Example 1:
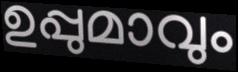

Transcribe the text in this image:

ഉപ്പുമാവും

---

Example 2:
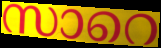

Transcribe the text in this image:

സാറെ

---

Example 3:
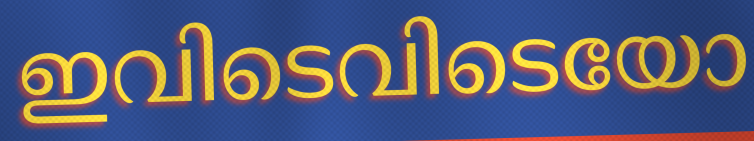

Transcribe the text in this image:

ഇവിടെവിടെയോ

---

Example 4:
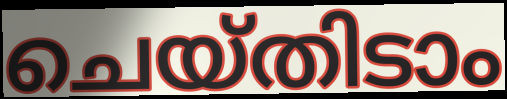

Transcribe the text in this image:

ചെയ്തിടാം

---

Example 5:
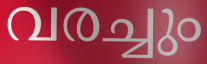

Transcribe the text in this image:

വരച്ചും